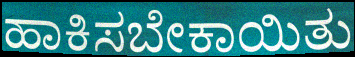
ಹಾಕಿಸಬೇಕಾಯಿತು